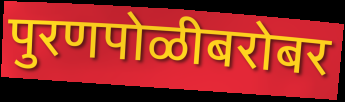
पुरणपोळीबरोबर